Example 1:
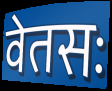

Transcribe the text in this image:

वेतसः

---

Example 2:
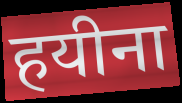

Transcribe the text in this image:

हयीना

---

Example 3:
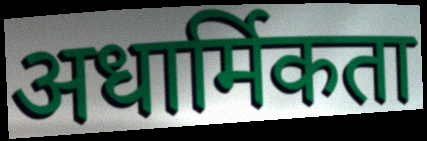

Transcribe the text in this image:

अधार्मिकता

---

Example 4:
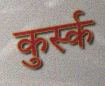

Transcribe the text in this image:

कुर्स्क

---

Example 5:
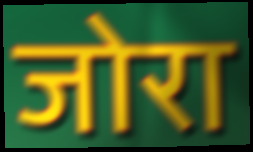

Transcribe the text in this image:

जोरा